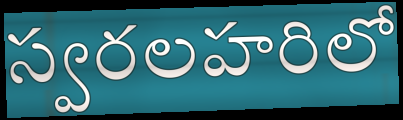
స్వరలహరిలో